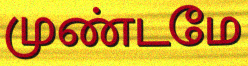
முண்டமே